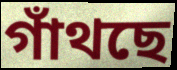
গাঁথছে